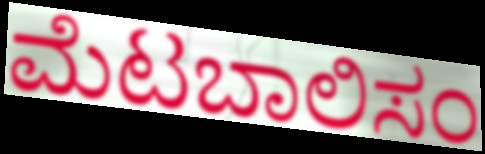
ಮೆಟಬಾಲಿಸಂ